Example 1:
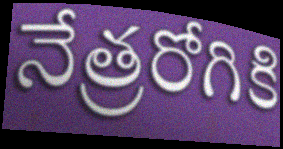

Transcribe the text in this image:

నేత్రరోగికి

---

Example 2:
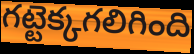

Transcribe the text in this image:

గట్టెక్కగలిగింది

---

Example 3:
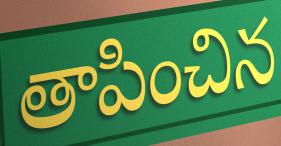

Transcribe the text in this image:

తాపించిన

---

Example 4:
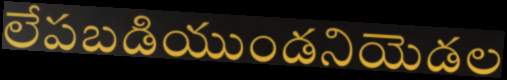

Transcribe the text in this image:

లేపబడియుండనియెడల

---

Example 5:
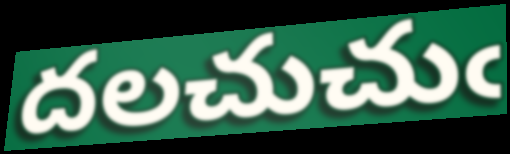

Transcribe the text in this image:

దలచుచుఁ